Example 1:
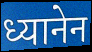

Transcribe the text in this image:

ध्यानेन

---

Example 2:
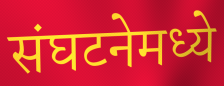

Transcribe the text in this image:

संघटनेमध्ये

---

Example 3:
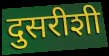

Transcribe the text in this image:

दुसरीशी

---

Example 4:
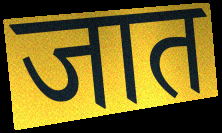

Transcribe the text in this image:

जात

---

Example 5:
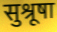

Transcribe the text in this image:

सुश्रूषा